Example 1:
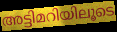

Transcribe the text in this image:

അട്ടിമറിയിലൂടെ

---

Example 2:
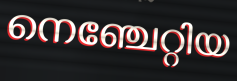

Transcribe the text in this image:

നെഞ്ചേറ്റിയ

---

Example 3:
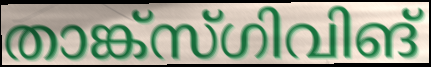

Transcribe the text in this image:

താങ്ക്സ്ഗിവിങ്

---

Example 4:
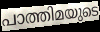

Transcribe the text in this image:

പാത്തിമയുടെ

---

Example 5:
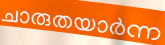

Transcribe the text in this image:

ചാരുതയാർന്ന